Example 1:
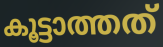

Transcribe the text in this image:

കൂട്ടാത്തത്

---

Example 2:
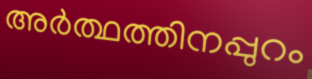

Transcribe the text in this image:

അർത്ഥത്തിനപ്പുറം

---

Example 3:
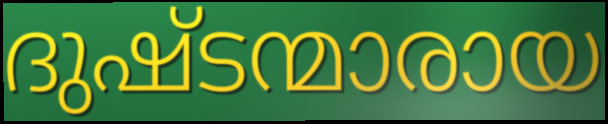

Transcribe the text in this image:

ദുഷ്ടന്മാരായ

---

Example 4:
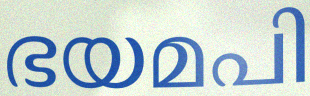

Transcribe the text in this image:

ഭയമപി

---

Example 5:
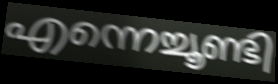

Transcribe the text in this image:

എന്നെച്ചൂണ്ടി